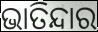
ଭାତିନ୍ଦାର